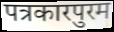
पत्रकारपुरम